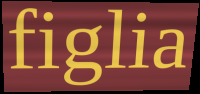
figlia